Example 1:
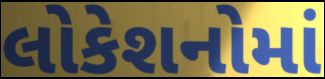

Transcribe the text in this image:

લોકેશનોમાં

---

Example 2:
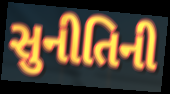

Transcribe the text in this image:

સુનીતિની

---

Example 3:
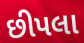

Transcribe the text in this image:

છીપલા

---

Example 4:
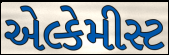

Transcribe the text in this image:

એલ્કેમીસ્ટ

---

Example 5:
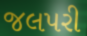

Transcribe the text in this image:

જલપરી